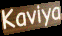
Kaviya